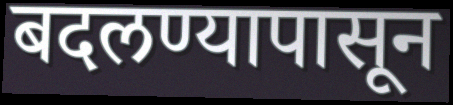
बदलण्यापासून